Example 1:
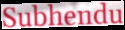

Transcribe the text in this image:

Subhendu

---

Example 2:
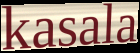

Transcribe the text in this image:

kasala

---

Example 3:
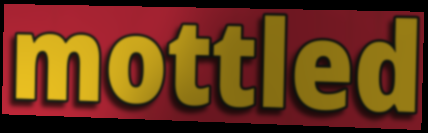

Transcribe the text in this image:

mottled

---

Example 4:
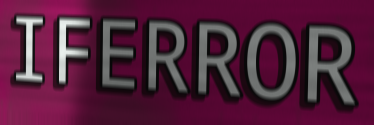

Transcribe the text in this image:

IFERROR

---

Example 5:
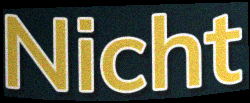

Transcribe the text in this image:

Nicht